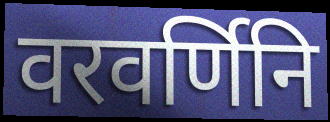
वरवर्णिनि